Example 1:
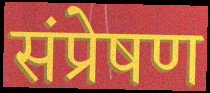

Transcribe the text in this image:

संप्रेषण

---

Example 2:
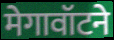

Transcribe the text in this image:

मेगावॉटने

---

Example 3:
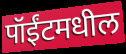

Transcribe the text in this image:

पॉईंटमधील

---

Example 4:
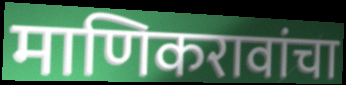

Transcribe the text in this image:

माणिकरावांचा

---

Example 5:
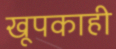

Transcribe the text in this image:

खूपकाही